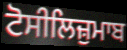
ਟੋਸੀਲਿਜ਼ੁਮਾਬ